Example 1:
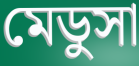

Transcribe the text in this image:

মেডুসা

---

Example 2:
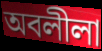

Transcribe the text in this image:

অবলীলা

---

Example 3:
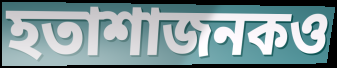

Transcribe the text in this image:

হতাশাজনকও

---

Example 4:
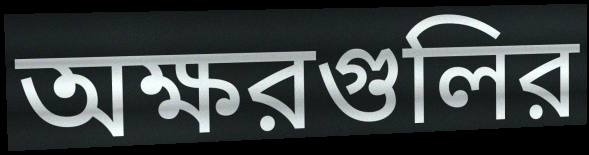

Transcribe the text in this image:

অক্ষরগুলির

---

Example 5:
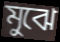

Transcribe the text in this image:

মুঝে